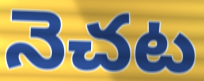
నెచట